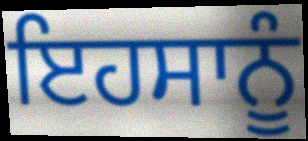
ਇਹਸਾਨੂੰ